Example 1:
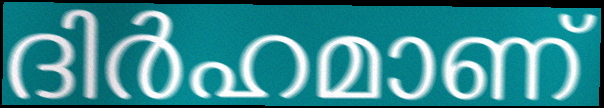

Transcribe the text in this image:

ദിർഹമാണ്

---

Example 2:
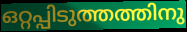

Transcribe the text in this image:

ഒറ്റപ്പിടുത്തത്തിനു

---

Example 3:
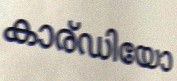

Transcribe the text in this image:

കാര്ഡിയോ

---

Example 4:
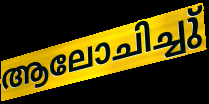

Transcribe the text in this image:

ആലോചിച്ചു്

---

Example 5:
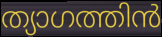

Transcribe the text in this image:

ത്യാഗത്തിൻ